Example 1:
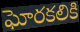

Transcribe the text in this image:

ఘోరకలికి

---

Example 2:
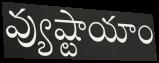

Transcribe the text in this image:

వ్యుష్టాయాం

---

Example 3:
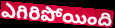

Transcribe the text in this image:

ఎగిరిపోయింది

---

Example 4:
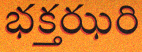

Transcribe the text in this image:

భక్తఝరి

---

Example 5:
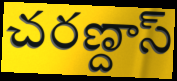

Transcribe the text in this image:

చరణ్దాస్